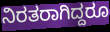
ನಿರತರಾಗಿದ್ದರೂ